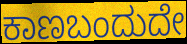
ಕಾಣಬಂದುದೇ